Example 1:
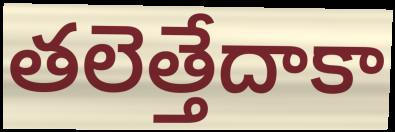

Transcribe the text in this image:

తలెత్తేదాకా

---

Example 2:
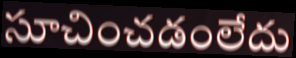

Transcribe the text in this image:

సూచించడంలేదు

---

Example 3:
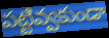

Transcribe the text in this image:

పట్టివ్వకుండా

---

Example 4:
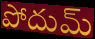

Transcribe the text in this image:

పోదుమ్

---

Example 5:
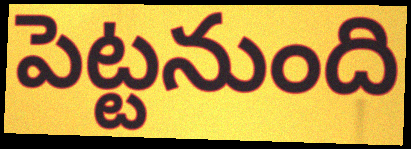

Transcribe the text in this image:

పెట్టనుంది